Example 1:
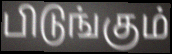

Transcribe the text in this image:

பிடுங்கும்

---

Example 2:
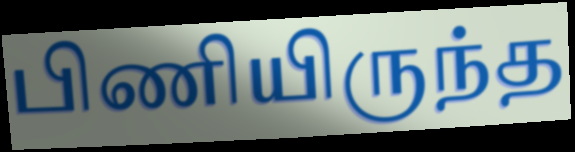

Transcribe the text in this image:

பிணியிருந்த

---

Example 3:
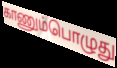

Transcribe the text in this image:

காணும்பொழுது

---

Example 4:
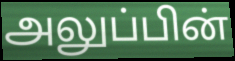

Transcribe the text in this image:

அலுப்பின்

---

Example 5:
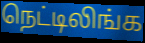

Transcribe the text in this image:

நெட்டிலிங்க